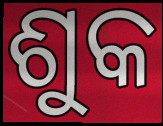
ଶୁକ